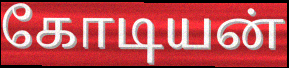
கோடியன்